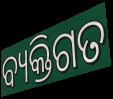
ବ୍ୟକ୍ତିଗତ